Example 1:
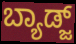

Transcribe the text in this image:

ಬ್ಯಾಡ್ಜ್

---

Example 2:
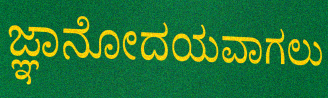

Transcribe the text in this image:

ಜ್ಞಾನೋದಯವಾಗಲು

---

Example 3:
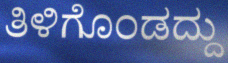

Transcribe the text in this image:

ತಿಳಿಗೊಂಡದ್ದು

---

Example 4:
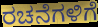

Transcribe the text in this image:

ರಚನೆಗಳಿಗೆ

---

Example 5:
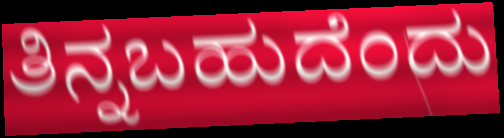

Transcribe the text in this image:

ತಿನ್ನಬಹುದೆಂದು